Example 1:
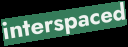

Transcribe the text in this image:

interspaced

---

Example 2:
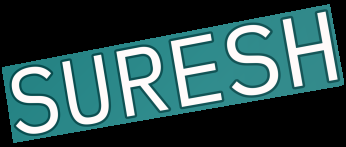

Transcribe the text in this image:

SURESH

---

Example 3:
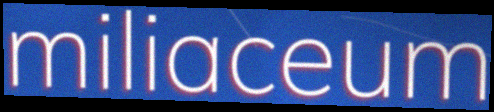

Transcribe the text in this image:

miliaceum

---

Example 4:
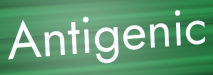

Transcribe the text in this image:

Antigenic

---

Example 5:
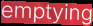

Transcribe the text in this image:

emptying